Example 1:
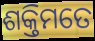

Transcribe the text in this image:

ଶକ୍ତିମତେ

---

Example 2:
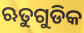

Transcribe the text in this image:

ଋତୁଗୁଡିକ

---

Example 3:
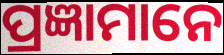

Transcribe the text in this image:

ପ୍ରଜ୍ଞାମାନେ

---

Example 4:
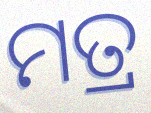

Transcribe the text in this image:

ମତ୍ର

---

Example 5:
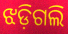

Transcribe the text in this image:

ଝଡ଼ିଗଲି